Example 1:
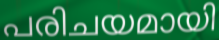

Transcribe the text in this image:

പരിചയമായി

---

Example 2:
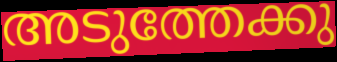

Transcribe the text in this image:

അടുത്തേക്കു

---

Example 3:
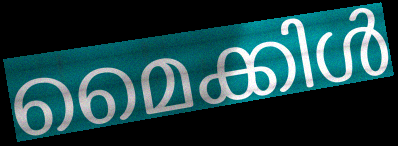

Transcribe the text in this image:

മൈക്കിൾ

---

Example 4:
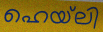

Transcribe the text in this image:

ഹെയ്‌ലി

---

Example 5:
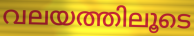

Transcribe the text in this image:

വലയത്തിലൂടെ